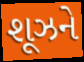
શૂઝને